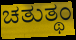
ಚತುತ್ಥಂ